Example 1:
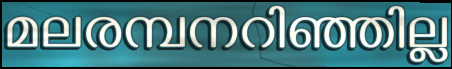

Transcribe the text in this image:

മലരമ്പനറിഞ്ഞില്ല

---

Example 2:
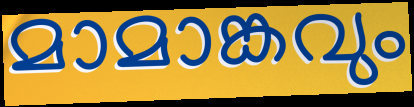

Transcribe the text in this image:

മാമാങ്കവും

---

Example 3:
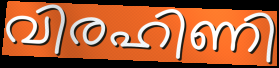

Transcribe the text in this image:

വിരഹിണി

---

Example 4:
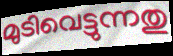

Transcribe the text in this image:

മുടിവെട്ടുന്നതു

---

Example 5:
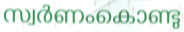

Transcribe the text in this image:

സ്വർണംകൊണ്ടു